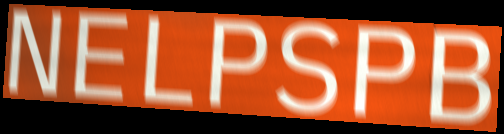
NELPSPB